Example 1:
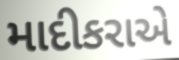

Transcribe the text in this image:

માદીકરાએ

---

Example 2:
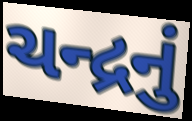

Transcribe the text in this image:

ચન્દ્રનું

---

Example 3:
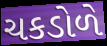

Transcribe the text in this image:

ચકડોળે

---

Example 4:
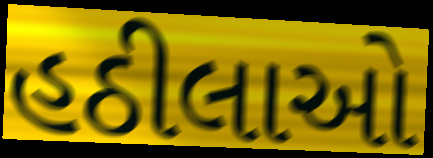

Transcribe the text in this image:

હઠીલાઓ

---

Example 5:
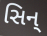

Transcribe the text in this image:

સિન્